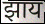
झाय